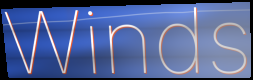
Winds